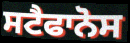
ਸਟੈਫਾਨੋਸ